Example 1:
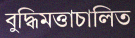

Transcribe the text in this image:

বুদ্ধিমত্তাচালিত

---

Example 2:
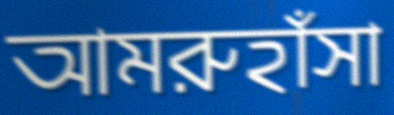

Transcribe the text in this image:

আমরুহাঁসা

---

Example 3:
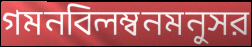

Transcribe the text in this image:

গমনবিলম্বনমনুসর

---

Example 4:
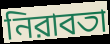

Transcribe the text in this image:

নিরাবতা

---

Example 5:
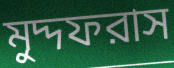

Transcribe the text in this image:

মুদ্দফরাস